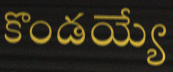
కొండయ్యే